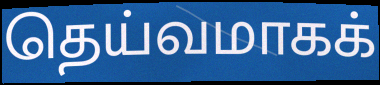
தெய்வமாகக்